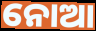
ନୋଆ